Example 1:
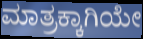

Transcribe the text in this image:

ಮಾತ್ರಕ್ಕಾಗಿಯೇ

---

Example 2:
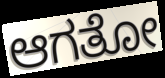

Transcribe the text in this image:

ಆಗತೋ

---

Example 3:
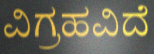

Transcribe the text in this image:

ವಿಗ್ರಹವಿದೆ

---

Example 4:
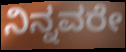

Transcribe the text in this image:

ನಿನ್ನವರೇ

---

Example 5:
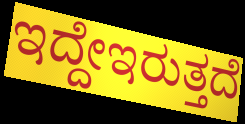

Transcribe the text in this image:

ಇದ್ದೇಇರುತ್ತದೆ